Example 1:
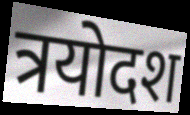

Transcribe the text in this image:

त्रयोदश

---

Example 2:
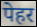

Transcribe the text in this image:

पेहर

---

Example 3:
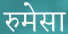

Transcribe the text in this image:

रुमेसा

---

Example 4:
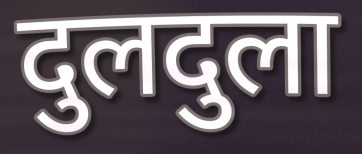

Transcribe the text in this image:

दुलदुला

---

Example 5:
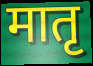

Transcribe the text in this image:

मातृ